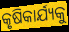
କୃଷିକାର୍ଯ୍ୟକୁ